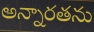
అన్నారతను